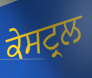
ਕੇਸਟ੍ਰਲ